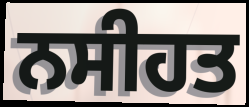
ਨਸੀਹਤ